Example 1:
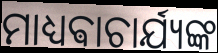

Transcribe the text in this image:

ମାଧ୍ୟଵାଚାର୍ଯ୍ୟଙ୍କ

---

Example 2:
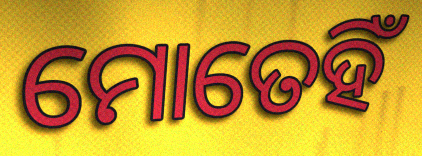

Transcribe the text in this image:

ମୋତେହିଁ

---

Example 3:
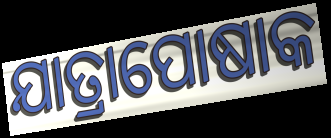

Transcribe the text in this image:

ଯାତ୍ରାପୋଷାକ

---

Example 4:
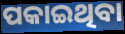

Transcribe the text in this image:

ପକାଇଥିବା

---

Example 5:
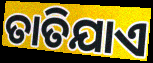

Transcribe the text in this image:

ତାତିଯାଏ